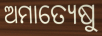
ଅମାତ୍ୟେଷୁ